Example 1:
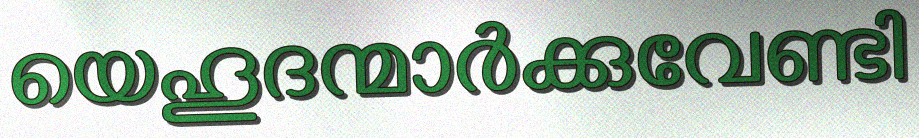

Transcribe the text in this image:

യെഹൂദന്മാർക്കുവേണ്ടി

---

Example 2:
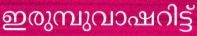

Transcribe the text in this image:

ഇരുമ്പുവാഷറിട്ട്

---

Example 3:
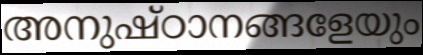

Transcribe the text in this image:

അനുഷ്ഠാനങ്ങളേയും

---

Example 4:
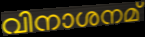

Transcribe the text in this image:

വിനാശനമ്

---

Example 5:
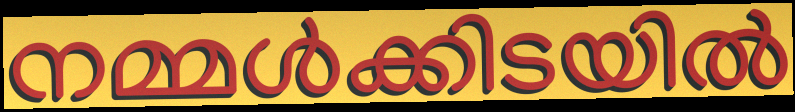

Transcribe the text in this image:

നമ്മൾക്കിടയിൽ